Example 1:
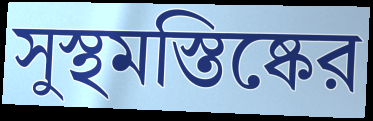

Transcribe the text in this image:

সুস্থমস্তিষ্কের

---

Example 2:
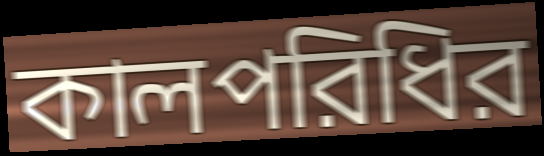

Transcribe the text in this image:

কালপরিধির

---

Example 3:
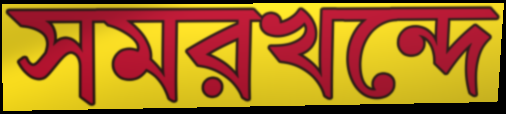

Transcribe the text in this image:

সমরখন্দে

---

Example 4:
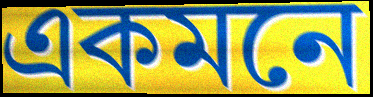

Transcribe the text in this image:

একমনে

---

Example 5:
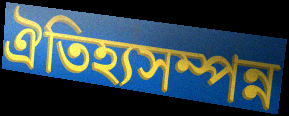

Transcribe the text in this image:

ঐতিহ্যসম্পন্ন